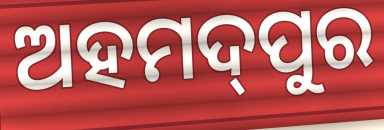
ଅହମଦ୍‌ପୁର